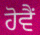
ਹੋਵੈਂ